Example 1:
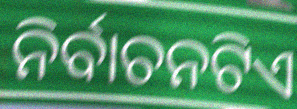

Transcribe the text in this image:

ନିର୍ବାଚନଟିଏ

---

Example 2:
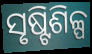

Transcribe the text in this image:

ସୃଷ୍ଟିଶିଳ୍ପ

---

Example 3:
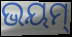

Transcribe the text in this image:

ଭୟମ୍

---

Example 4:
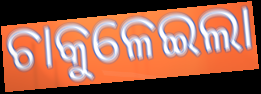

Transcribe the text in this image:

ଚାକୁଳେଇଲା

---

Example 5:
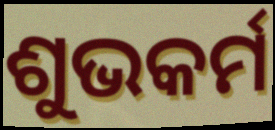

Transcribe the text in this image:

ଶୁଭକର୍ମ